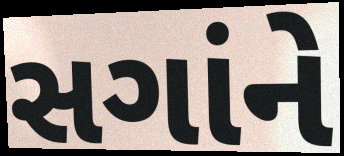
સગાંને